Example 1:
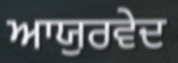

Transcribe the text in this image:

ਆਯੁਰਵੇਦ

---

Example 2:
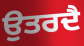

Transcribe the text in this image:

ਉਤਰਦੈ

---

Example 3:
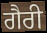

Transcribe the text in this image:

ਗੈਰੀ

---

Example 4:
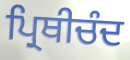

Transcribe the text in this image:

ਪ੍ਰਿਥੀਚੰਦ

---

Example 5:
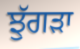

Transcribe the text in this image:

ਝੁੱਗੜਾ